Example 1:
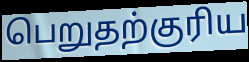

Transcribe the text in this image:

பெறுதற்குரிய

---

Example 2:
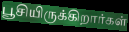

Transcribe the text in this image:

பூசியிருக்கிறார்கள்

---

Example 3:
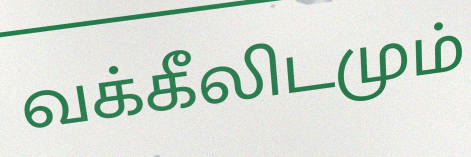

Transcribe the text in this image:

வக்கீலிடமும்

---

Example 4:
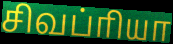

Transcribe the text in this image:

சிவப்ரியா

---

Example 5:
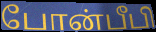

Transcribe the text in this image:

போன்பீபி